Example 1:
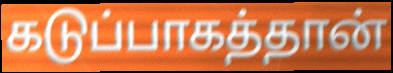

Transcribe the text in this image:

கடுப்பாகத்தான்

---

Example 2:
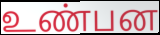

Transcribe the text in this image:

உண்பன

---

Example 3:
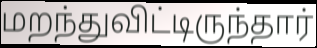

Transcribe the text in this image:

மறந்துவிட்டிருந்தார்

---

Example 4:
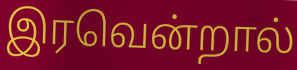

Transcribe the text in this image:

இரவென்றால்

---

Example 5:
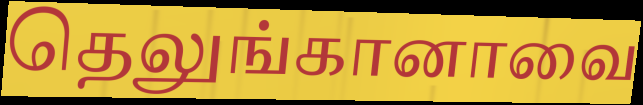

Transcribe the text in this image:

தெலுங்கானாவை